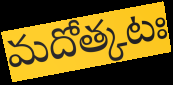
మదోత్కటః